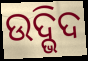
ଉଦ୍ଭିଦ